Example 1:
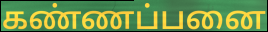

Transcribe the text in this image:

கண்ணப்பனை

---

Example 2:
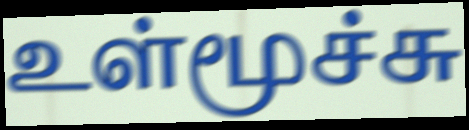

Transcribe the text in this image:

உள்மூச்சு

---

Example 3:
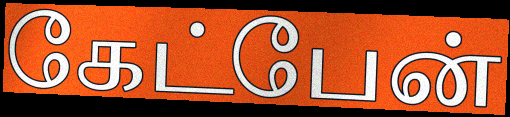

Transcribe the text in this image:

கேட்பேன்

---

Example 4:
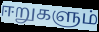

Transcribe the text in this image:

ஈறுகளும்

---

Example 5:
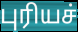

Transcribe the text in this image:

புரியச்